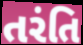
તરંતિ